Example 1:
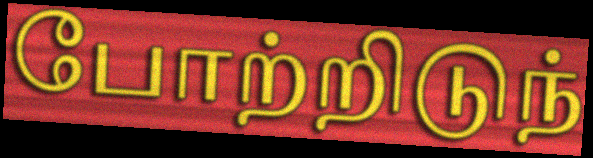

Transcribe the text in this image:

போற்றிடுந்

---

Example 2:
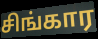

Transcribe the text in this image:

சிங்கார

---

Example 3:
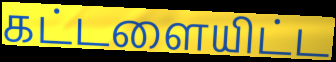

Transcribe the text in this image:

கட்டளையிட்ட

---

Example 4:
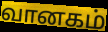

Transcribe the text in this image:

வானகம்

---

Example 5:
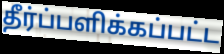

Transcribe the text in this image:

தீர்ப்பளிக்கப்பட்ட